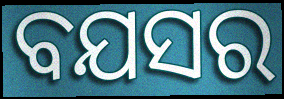
ବଯସର